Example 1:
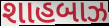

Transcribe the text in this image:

શાહબાઝ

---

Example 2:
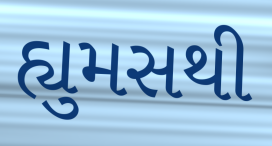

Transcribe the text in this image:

હ્યુમસથી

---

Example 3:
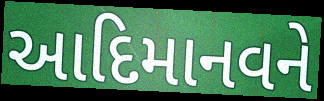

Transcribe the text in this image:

આદિમાનવને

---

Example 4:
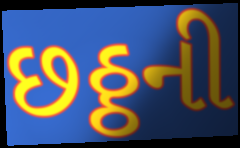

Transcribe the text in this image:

છઠ્ઠની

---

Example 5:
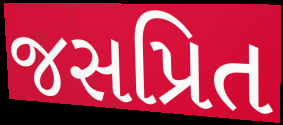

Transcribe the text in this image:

જસપ્રિત